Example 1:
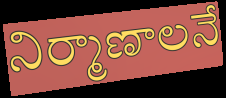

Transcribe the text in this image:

నిర్మాణాలనే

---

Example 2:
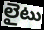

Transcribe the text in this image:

లైటు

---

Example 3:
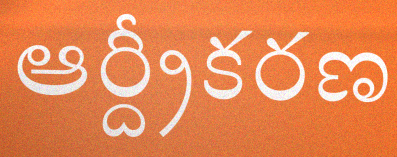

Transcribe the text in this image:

ఆర్ద్రీకరణ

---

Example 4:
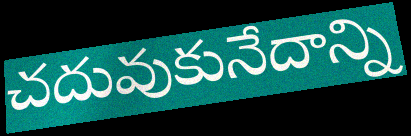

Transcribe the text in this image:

చదువుకునేదాన్ని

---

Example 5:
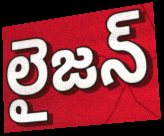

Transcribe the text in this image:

లైజన్